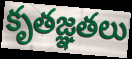
కృతజ్ఞతలు